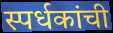
स्पर्धकांची